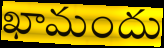
ఖామందు